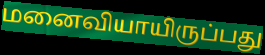
மனைவியாயிருப்பது